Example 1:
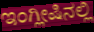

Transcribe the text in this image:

ಇಂಗ್ಲೀಷಿನಲ್ಲಿ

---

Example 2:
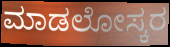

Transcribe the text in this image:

ಮಾಡಲೋಸ್ಕರ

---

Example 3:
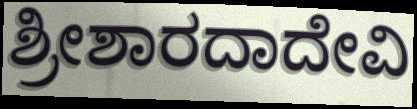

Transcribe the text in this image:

ಶ್ರೀಶಾರದಾದೇವಿ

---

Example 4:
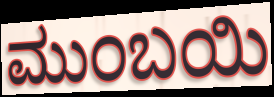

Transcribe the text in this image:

ಮುಂಬಯಿ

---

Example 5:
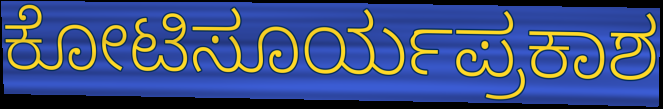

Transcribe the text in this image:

ಕೋಟಿಸೂರ್ಯಪ್ರಕಾಶ